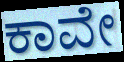
ಕಾವೇ